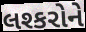
લશ્કરોને